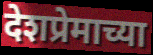
देशप्रेमाच्या